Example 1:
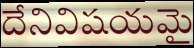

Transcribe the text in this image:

దేనివిషయమై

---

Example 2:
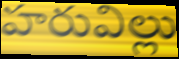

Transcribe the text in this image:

హరువిల్లు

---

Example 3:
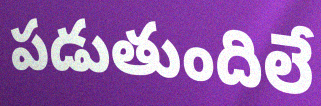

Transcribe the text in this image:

పడుతుందిలే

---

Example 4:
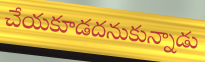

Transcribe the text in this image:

చేయకూడదనుకున్నాడు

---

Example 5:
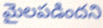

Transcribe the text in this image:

మైలపడిందని